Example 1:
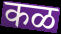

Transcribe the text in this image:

कळ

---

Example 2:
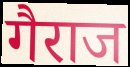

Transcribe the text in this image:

गैराज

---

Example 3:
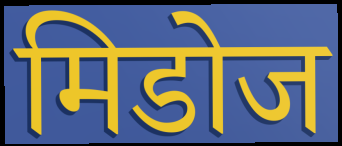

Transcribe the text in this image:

मिडोज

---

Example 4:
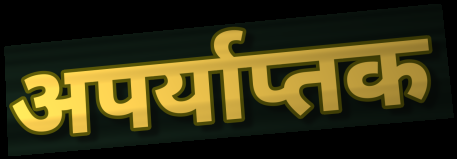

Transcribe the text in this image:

अपर्याप्तक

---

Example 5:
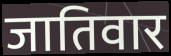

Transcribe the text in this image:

जातिवार